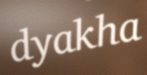
dyakha